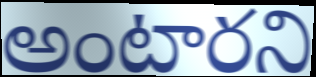
అంటారని